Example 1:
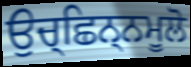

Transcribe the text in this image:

ਉਚ੍ਛਿਨ੍ਨਮੂਲੋ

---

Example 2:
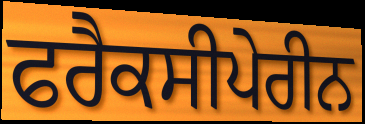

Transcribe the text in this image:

ਫਰੈਕਸੀਪੇਰੀਨ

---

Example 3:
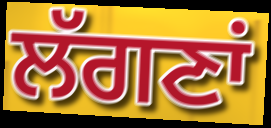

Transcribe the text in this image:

ਲੱਗਣਾਂ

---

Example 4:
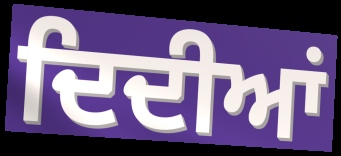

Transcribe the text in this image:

ਦਿਦੀਆਂ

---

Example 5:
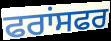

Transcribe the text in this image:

ਫਰਾਂਸਫਰ